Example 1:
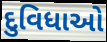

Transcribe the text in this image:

દુવિધાઓ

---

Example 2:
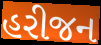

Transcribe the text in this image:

હરીજન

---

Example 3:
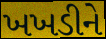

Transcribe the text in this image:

ખખડીને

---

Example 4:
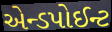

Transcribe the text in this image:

એન્ડપોઈન્ટ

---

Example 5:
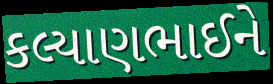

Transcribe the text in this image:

કલ્યાણભાઈને